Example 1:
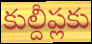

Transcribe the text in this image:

కుల్దీప్లకు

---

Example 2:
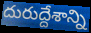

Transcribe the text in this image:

దురుద్దేశాన్ని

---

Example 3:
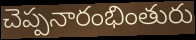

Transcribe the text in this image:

చెప్పనారంభింతురు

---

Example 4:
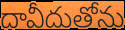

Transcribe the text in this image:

దావీదుతోను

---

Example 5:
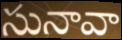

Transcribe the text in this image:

సునావా